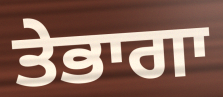
ਤੇਭਾਗਾ